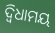
ଦ୍ୱିଧାମୟ